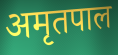
अमृतपाल